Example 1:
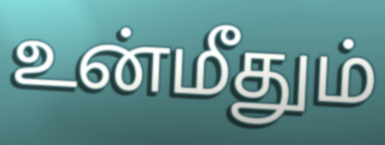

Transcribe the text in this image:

உன்மீதும்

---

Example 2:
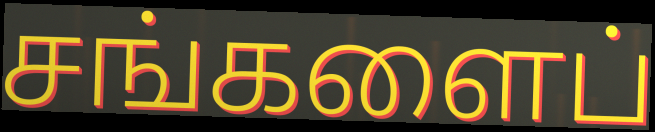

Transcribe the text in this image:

சங்களைப்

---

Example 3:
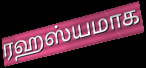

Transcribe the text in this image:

ரஹஸ்யமாக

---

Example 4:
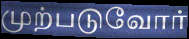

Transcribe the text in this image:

முற்படுவோர்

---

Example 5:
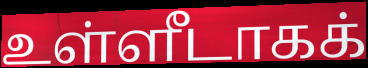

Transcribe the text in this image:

உள்ளீடாகக்